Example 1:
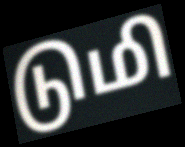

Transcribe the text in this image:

டுமி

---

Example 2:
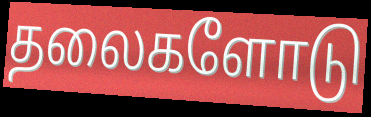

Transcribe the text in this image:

தலைகளோடு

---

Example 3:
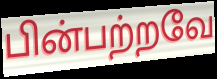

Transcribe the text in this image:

பின்பற்றவே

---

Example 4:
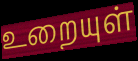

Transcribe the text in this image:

உறையுள்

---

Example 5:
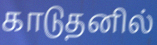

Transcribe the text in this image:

காடுதனில்